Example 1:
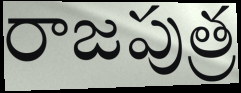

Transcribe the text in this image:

రాజపుత్ర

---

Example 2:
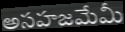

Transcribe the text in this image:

అసహజమేమీ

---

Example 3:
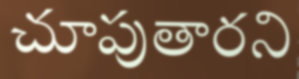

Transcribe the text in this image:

చూపుతారని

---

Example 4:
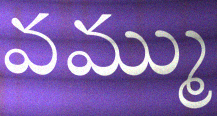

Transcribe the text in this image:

వమ్ము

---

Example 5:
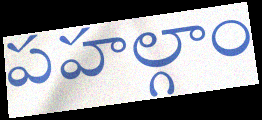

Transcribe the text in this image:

పహల్గాం